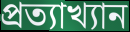
প্রত্যাখ্যান